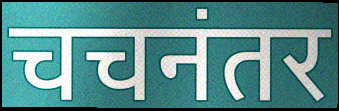
चचनंतर